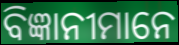
ବିଜ୍ଞାନୀମାନେ